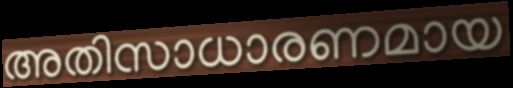
അതിസാധാരണമായ